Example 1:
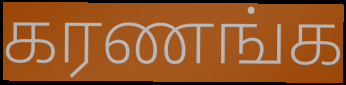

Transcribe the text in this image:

கரணங்க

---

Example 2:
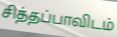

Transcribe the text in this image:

சித்தப்பாவிடம்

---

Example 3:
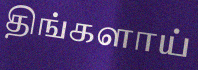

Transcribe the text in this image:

திங்களாய்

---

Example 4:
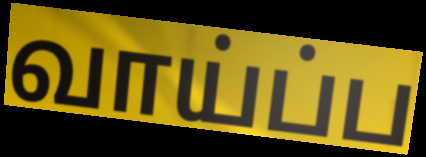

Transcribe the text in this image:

வாய்ப்ப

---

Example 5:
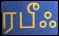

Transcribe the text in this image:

ரபீஃ